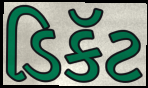
ડિકૅટ